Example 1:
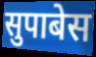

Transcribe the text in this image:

सुपाबेस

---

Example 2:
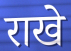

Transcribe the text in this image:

राखे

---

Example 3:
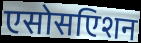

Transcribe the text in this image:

एसोसएिशन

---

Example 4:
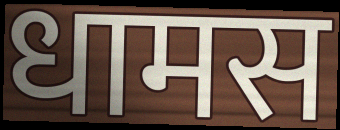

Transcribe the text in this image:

धामस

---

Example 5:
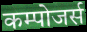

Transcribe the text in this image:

कम्पोजर्स